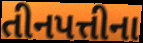
તીનપત્તીના